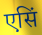
एसिं